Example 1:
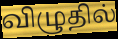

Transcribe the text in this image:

விழுதில்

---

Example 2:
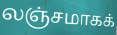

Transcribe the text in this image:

லஞ்சமாகக்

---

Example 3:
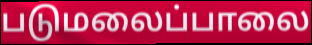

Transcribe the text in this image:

படுமலைப்பாலை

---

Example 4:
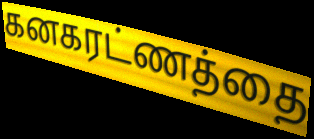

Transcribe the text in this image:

கனகரட்ணத்தை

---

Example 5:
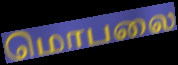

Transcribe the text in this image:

மொபலை